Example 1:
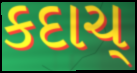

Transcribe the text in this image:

કદાચ્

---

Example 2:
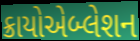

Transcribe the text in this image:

ક્રાયોએબ્લેશન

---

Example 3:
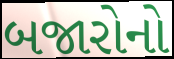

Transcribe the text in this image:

બજારોનો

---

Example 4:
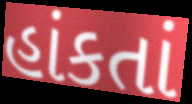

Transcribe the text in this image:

હાંકતાં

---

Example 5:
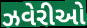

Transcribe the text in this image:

ઝવેરીઓ